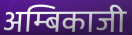
अम्बिकाजी